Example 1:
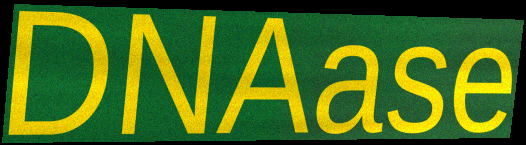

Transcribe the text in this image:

DNAase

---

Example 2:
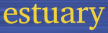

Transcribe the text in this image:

estuary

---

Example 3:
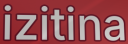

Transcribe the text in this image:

izitina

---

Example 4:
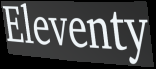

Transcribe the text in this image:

Eleventy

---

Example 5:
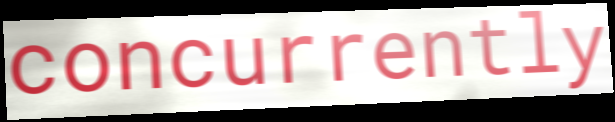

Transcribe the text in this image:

concurrently